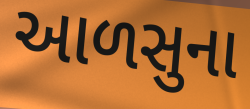
આળસુના